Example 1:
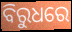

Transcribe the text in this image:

ବିରୁଧରେ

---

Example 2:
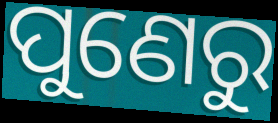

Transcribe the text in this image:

ପୁଣେରୁ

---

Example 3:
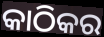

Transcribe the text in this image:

କାଠିକର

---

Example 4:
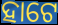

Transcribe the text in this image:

ହାଟେ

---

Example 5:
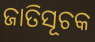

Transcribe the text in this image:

ଜାତିସୂଚକ